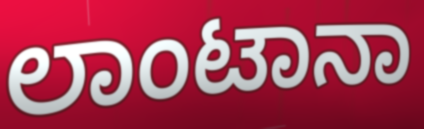
ಲಾಂಟಾನಾ